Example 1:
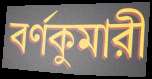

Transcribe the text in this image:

বর্ণকুমারী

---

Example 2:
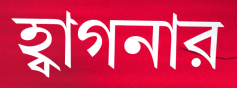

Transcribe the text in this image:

হ্বাগনার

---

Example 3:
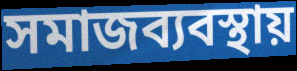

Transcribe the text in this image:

সমাজব্যবস্থায়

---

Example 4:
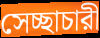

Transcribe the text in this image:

সেচ্ছাচারী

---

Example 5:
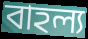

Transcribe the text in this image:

বাহল্য